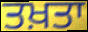
ਤਖ਼ਤਾ